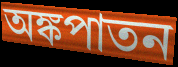
অঙ্কপাতন